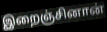
இறைஞ்சினான்